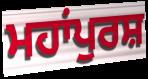
ਮਹਾਂਪੁਰਸ਼